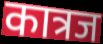
कात्रज